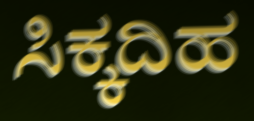
ಸಿಕ್ಕದಿಹ